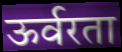
ऊर्वरता